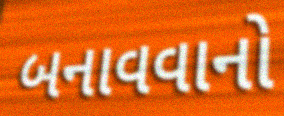
બનાવવાનો